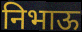
निभाऊ